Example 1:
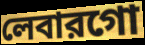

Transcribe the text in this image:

লেবারগো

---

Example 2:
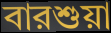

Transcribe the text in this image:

বারশুয়া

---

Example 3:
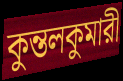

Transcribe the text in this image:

কুন্তলকুমারী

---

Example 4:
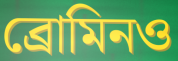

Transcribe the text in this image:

ব্রোমিনও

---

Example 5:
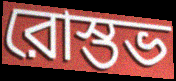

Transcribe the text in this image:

রোস্তভ